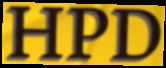
HPD